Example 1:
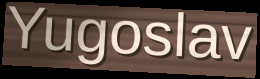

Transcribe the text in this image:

Yugoslav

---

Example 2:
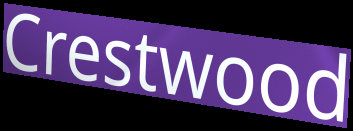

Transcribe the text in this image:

Crestwood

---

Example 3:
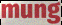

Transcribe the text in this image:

mung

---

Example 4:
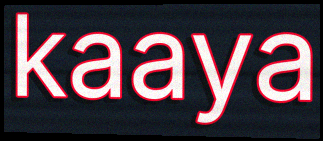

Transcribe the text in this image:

kaaya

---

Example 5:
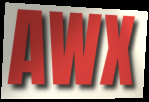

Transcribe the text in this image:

AWX